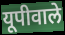
यूपीवाले